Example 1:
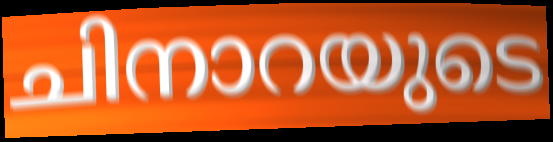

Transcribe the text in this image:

ചിനാറയുടെ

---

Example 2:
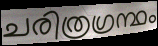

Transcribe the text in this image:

ചരിത്രഗ്രന്ഥം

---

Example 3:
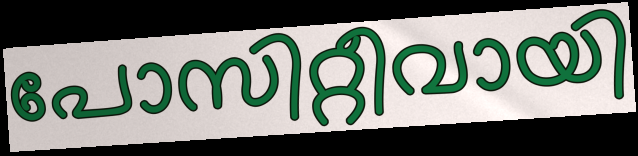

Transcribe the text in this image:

പോസിറ്റീവായി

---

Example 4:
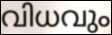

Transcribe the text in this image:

വിധവും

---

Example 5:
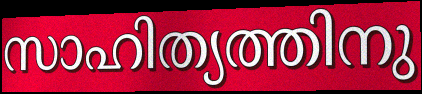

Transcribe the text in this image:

സാഹിത്യത്തിനു